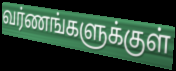
வர்ணங்களுக்குள்